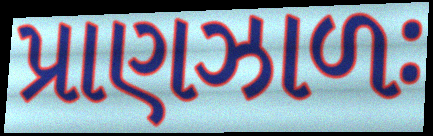
પ્રાણઝાળઃ